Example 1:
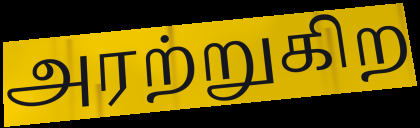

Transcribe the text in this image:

அரற்றுகிற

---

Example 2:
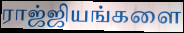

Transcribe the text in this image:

ராஜ்ஜியங்களை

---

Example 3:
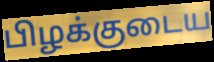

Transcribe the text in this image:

பிழக்குடைய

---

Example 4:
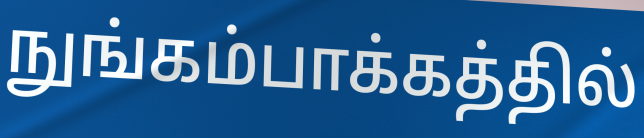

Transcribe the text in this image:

நுங்கம்பாக்கத்தில்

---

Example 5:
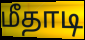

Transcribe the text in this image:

மீதாடி